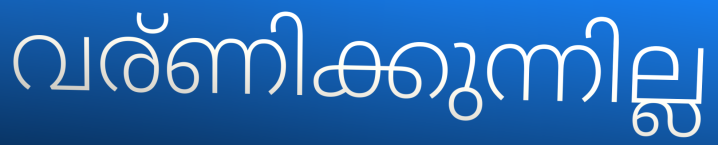
വര്ണിക്കുന്നില്ല